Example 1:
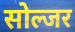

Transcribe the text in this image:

सोल्जर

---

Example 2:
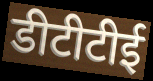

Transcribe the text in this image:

डीटीटीई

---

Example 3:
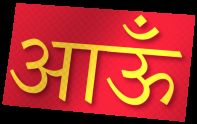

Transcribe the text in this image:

आऊँ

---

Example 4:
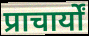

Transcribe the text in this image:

प्राचार्यों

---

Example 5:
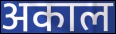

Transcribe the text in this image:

अकाल